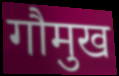
गौमुख